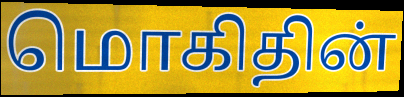
மொகிதின்